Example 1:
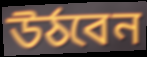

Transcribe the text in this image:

উঠবেন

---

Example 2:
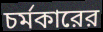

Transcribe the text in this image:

চর্মকারের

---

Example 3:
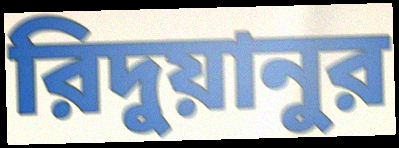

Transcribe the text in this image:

রিদুয়ানুর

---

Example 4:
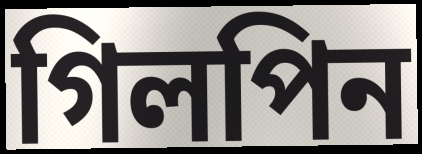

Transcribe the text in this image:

গিলপিন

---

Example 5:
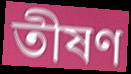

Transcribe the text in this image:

তীষণ